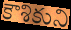
కౌశికుని